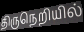
திருநெறியில்